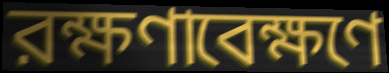
রক্ষণাবেক্ষণে